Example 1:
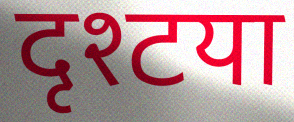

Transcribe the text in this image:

दृश्टया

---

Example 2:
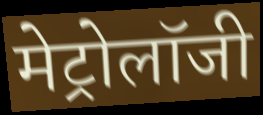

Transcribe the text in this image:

मेट्रोलॉजी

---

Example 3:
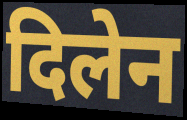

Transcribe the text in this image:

दिलेन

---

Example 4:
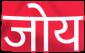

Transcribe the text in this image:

जोय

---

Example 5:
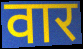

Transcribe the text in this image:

वार